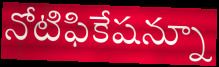
నోటిఫికేషన్నూ